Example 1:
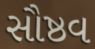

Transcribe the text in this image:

સૌષ્ઠવ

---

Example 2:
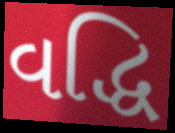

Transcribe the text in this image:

વદ્ધિ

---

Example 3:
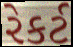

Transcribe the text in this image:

રેકર્ટ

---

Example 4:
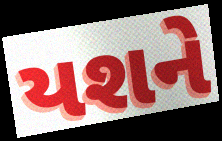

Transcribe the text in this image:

યશને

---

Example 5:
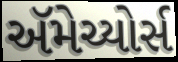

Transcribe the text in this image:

ઍમેચ્યોર્સ